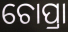
ଚୋପ୍ରା